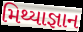
મિથ્યાજ્ઞાન